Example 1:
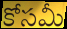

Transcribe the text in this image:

కోసమీ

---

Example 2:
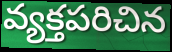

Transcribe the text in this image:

వ్యక్తపరిచిన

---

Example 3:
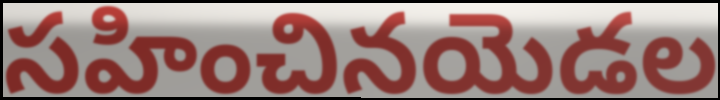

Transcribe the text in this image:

సహించినయెడల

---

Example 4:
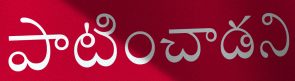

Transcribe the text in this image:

పాటించాడని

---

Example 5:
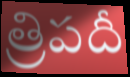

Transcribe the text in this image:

త్రిపదీ